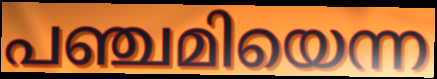
പഞ്ചമിയെന്ന